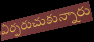
ఏర్పరుచుకున్నారు